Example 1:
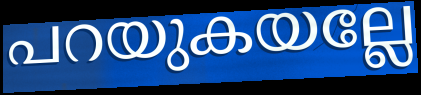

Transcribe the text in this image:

പറയുകയല്ലേ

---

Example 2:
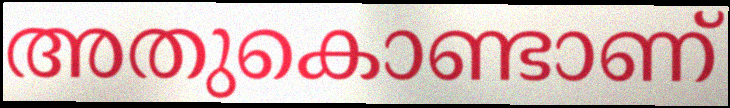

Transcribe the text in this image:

അതുകൊണ്ടാണ്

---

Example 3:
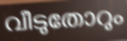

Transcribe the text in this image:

വീടുതോറും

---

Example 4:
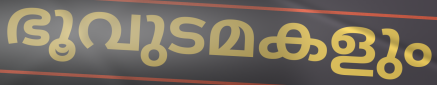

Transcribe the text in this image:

ഭൂവുടമകളും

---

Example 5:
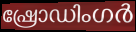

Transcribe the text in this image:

ഷ്രോഡിംഗർ